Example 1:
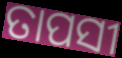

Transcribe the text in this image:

ତାପସୀ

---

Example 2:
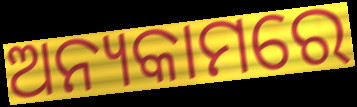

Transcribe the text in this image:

ଅନ୍ୟକାମରେ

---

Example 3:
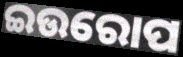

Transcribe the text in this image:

ଇଉରୋପ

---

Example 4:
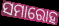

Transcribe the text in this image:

ସମାରୋହ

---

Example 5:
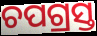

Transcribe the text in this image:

ଚପଗ୍ରସ୍ତ